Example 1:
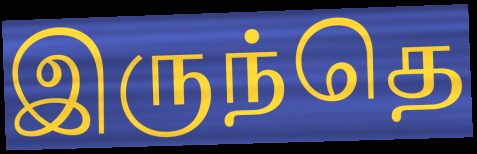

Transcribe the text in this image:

இருந்தெ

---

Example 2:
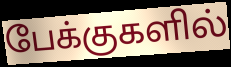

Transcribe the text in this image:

பேக்குகளில்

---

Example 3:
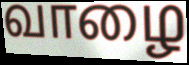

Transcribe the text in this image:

வாழை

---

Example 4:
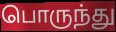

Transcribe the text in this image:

பொருந்து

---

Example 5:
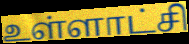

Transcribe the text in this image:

உள்ளாட்சி